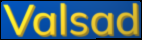
Valsad